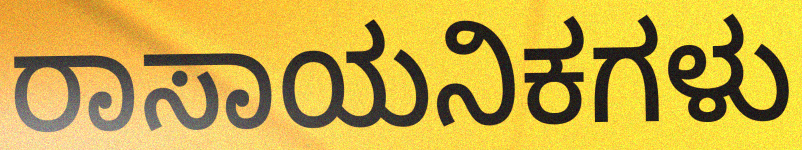
ರಾಸಾಯನಿಕಗಳು